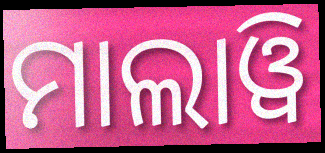
ମାଲାୱି